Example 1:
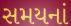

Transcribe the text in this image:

સમયનાં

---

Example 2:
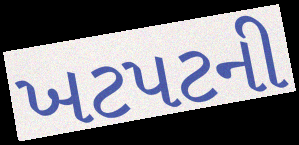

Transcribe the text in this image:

ખટપટની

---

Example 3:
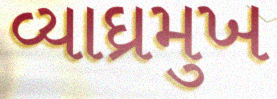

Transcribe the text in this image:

વ્યાઘ્રમુખ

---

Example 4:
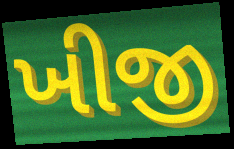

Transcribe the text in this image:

ખીજી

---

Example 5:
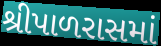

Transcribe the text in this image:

શ્રીપાળરાસમાં